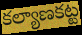
కల్యాణకట్ట